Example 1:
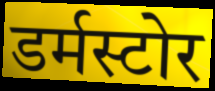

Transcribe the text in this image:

डर्मस्टोर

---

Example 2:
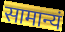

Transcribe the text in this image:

सामान्यं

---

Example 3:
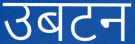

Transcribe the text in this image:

उबटन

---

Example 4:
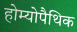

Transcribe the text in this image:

होम्‍योपैथिक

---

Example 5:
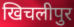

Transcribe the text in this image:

खिचलीपुर